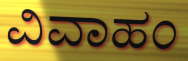
ವಿವಾಹಂ